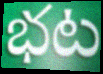
భట